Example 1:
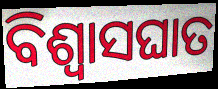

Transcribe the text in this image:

ବିଶ୍ବାସଘାତ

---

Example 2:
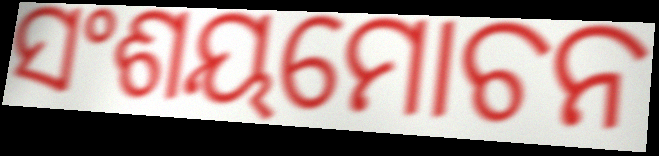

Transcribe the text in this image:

ସଂଶୟମୋଚନ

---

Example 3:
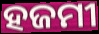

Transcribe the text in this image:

ହଜମୀ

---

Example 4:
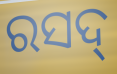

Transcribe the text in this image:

ରସଦ୍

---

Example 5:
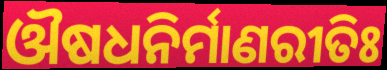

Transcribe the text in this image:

ଔଷଧନିର୍ମାଣରୀତିଃ